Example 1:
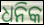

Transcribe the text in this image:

ଧନିକ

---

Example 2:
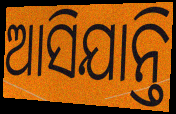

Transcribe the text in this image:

ଆସିଯାନ୍ତି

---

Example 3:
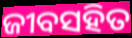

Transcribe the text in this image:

ଜୀବସହିତ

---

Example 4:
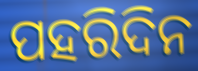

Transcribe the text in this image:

ପହରିଦିନ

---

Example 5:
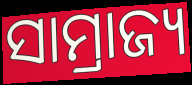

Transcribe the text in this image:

ସାମ୍ରାଜ୍ୟ